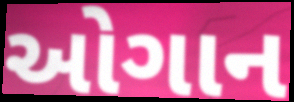
ઓગાન